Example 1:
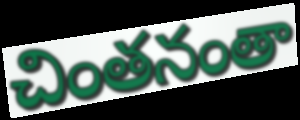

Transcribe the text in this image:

చింతనంతా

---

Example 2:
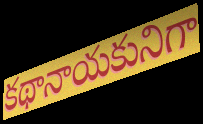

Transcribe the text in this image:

కథానాయకునిగా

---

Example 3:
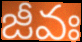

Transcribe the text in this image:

జీవః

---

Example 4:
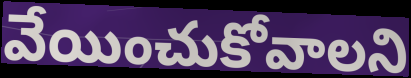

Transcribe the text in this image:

వేయించుకోవాలని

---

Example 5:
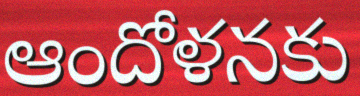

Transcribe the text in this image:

ఆందోళనకు